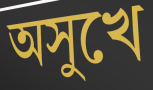
অসুখে